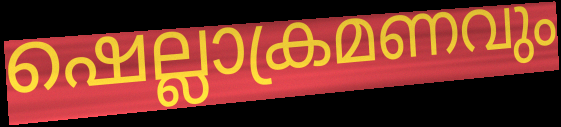
ഷെല്ലാക്രമണവും